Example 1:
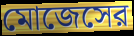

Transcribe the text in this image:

মোজেসের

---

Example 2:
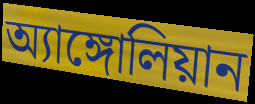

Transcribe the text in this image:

অ্যাঙ্গোলিয়ান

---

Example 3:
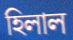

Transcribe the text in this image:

হিলাল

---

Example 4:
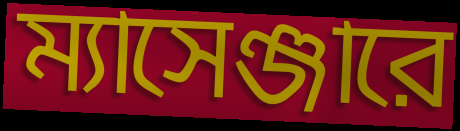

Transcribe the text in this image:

ম্যাসেঞ্জারে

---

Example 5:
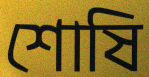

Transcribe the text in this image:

শোষি